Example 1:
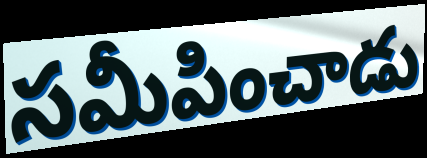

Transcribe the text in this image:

సమీపించాడు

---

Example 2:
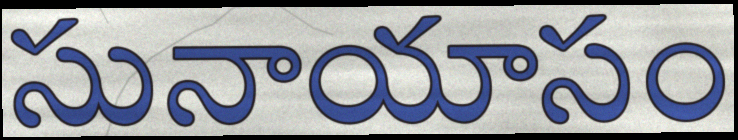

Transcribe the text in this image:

సునాయాసం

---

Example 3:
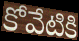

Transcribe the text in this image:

కోవేటికి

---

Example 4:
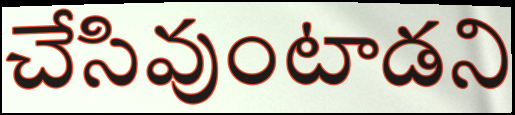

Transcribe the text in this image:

చేసివుంటాడని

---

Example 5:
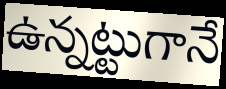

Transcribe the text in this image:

ఉన్నట్టుగానే